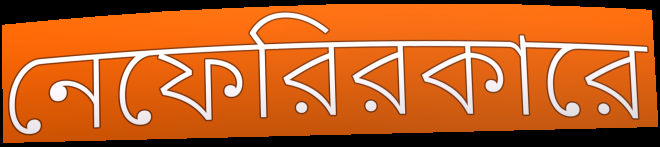
নেফেরিরকারে